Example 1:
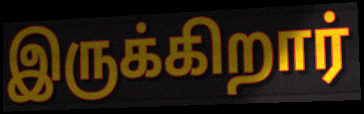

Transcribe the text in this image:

இருக்கிறார்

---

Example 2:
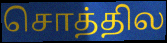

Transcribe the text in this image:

சொத்தில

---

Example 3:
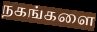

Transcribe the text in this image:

நகங்களை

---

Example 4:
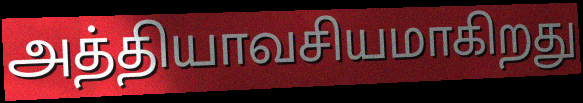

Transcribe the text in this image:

அத்தியாவசியமாகிறது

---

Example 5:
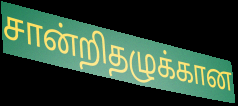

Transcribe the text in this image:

சான்றிதழுக்கான